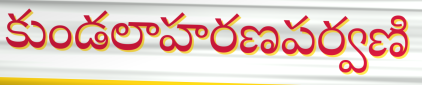
కుండలాహరణపర్వణి